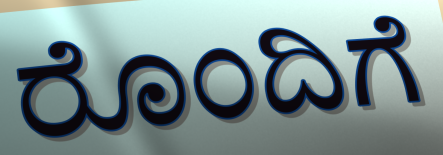
ರೊಂದಿಗೆ